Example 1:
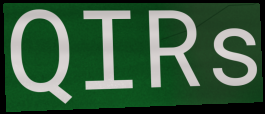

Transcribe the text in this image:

QIRs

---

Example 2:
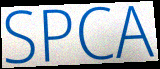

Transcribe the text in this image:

SPCA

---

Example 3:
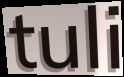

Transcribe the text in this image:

tuli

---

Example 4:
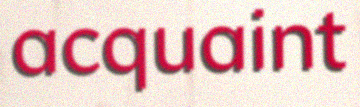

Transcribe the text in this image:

acquaint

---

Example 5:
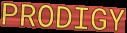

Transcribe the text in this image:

PRODIGY